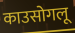
काउसोगलू